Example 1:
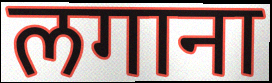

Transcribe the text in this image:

लगाना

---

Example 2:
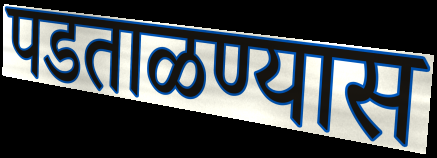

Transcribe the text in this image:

पडताळण्यास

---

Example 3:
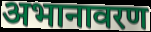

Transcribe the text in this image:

अभानावरण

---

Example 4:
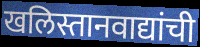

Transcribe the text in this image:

खलिस्तानवाद्यांची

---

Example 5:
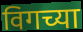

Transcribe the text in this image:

विगच्या